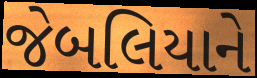
જેબલિયાને